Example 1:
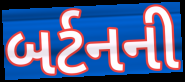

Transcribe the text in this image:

બર્ટનની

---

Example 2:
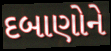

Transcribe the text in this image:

દબાણોને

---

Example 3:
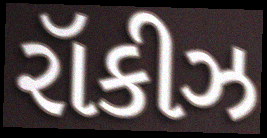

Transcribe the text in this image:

રૉકીઝ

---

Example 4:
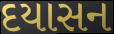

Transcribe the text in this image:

દયાસન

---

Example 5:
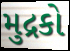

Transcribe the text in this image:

મુદ્રકો